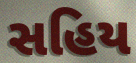
સહિય